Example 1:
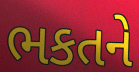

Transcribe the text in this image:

ભકતને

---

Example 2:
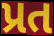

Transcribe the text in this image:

પ્રત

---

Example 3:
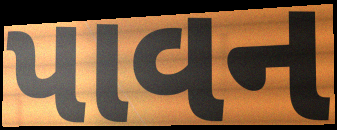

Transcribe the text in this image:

પાવન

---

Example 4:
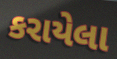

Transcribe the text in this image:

કરાયેલા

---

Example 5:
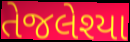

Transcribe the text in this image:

તેજલેશ્યા